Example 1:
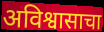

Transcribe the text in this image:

अविश्वासाचा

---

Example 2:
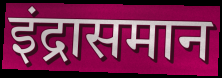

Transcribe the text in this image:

इंद्रासमान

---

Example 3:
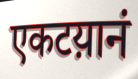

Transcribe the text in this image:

एकटय़ानं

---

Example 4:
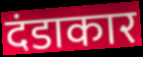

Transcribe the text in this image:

दंडाकार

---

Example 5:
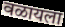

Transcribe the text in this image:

वळायला